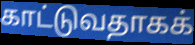
காட்டுவதாகக்